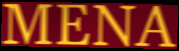
MENA